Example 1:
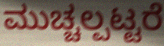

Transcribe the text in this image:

ಮುಚ್ಚಲ್ಪಟ್ಟರೆ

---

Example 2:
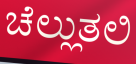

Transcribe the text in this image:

ಚೆಲ್ಲುತಲಿ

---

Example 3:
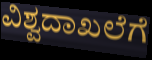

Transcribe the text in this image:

ವಿಶ್ವದಾಖಲೆಗೆ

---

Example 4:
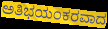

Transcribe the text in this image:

ಅತಿಭಯಂಕರವಾದ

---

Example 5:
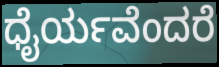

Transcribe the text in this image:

ಧೈರ್ಯವೆಂದರೆ